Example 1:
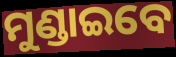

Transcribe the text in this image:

ମୁଣ୍ଡାଇବେ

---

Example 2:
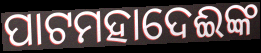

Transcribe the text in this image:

ପାଟମହାଦେଈଙ୍କ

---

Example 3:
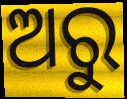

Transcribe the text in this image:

ଅରୁ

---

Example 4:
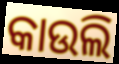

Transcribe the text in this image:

କାଉଲି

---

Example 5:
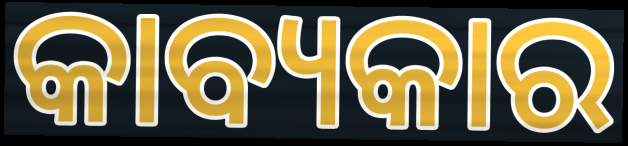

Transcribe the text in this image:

କାବ୍ୟକାର